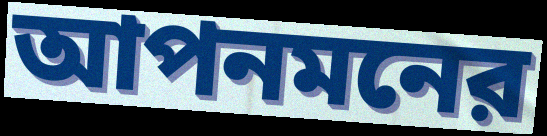
আপনমনের